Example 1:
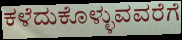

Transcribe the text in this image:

ಕಳೆದುಕೊಳ್ಳುವವರೆಗೆ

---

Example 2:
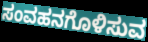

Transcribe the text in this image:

ಸಂವಹನಗೊಳಿಸುವ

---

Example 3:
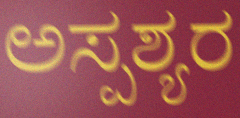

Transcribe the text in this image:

ಅಸ್ಪಶ್ಯರ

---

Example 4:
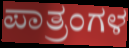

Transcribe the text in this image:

ಪಾತ್ರಂಗಳ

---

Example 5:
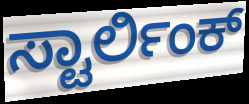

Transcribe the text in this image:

ಸ್ಟಾರ್ಲಿಂಕ್